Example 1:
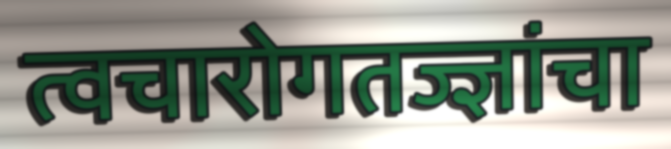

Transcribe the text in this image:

त्वचारोगतज्ज्ञांचा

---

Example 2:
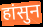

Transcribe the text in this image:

हांसुन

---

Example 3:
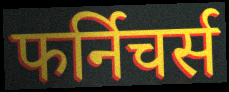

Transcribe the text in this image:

फर्निचर्स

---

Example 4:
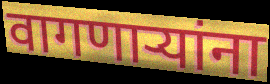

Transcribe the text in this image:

वागणार्‍यांना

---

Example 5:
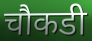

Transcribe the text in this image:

चौकडी